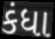
કંધા